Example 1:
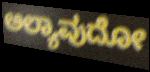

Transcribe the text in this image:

ಅಲ್ಯಾವುದೋ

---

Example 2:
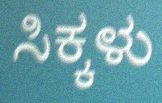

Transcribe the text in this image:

ಸಿಕ್ಕಳು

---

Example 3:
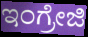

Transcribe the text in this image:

ಇಂಗ್ರೇಜಿ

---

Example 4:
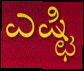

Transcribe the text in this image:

ಎಷ್ಟಿ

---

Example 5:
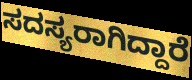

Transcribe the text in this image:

ಸದಸ್ಯರಾಗಿದ್ದಾರೆ